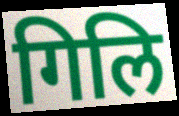
गिलि